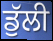
ਡੁੱਲੀ